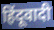
हिंदूवादी